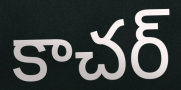
కాచర్